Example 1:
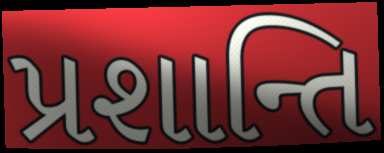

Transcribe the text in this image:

પ્રશાન્તિ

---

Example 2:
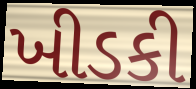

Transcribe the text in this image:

ખીડકી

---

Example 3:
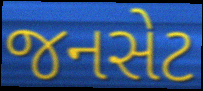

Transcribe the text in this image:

જનસેટ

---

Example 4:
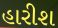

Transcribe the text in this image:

હારીશ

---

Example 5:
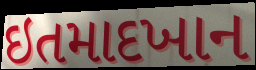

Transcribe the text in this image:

ઇતમાદખાન